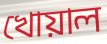
খোয়াল